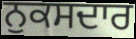
ਨੁਕਸਦਾਰ